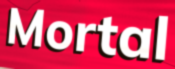
Mortal